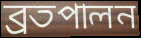
ব্রতপালন